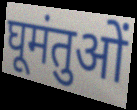
घूमंतुओं